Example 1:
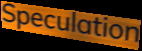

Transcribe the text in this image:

Speculation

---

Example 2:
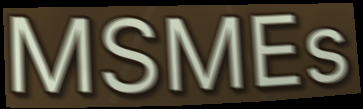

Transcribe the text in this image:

MSMEs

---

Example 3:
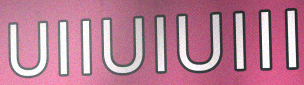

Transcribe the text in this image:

UIIUIUIII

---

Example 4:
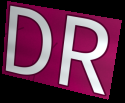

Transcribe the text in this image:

DR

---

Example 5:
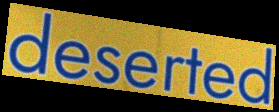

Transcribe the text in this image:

deserted